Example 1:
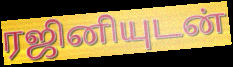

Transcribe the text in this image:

ரஜினியுடன்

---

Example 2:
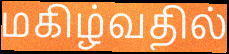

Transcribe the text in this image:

மகிழ்வதில்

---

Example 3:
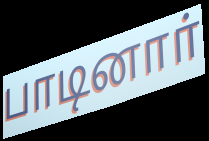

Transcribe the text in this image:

பாடினார்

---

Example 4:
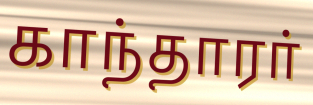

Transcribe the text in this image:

காந்தாரர்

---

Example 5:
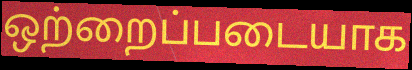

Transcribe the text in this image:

ஒற்றைப்படையாக